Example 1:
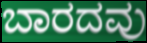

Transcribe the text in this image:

ಬಾರದವು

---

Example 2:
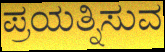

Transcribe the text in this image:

ಪ್ರಯತ್ನಿಸುವ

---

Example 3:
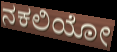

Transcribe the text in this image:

ನಕಲಿಯೋ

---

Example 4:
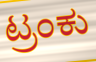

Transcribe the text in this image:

ಟ್ರಂಕು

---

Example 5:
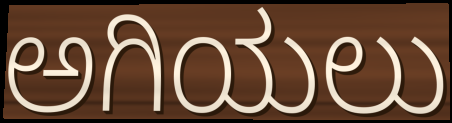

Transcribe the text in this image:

ಅಗಿಯಲು